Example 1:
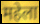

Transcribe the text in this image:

महेला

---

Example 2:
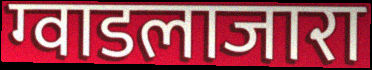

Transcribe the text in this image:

ग्वाडलाजारा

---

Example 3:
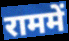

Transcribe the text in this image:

राममें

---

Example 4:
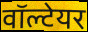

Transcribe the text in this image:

वॉल्टेयर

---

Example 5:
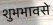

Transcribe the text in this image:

शुभभावसे